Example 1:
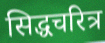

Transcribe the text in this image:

सिद्धचरित्र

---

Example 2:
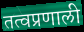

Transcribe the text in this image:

तत्वप्रणाली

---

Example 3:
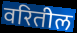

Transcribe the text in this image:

वरितील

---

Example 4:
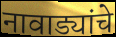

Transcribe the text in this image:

नावाड्यांचे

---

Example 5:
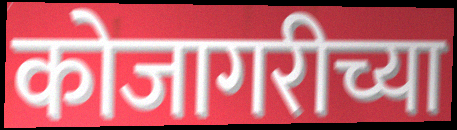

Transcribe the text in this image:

कोजागरीच्या